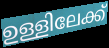
ഉള്ളിലേക്ക്